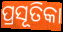
ପ୍ରସୂତିକା